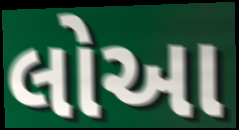
લોઆ